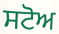
ਸਟੋਅ